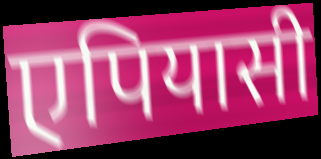
एपियासी